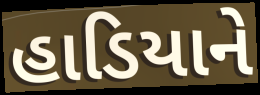
હાડિયાને